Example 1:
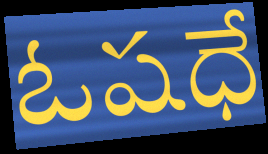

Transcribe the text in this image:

ఓషధే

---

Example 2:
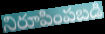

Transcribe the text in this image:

నిరూపింపబడి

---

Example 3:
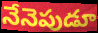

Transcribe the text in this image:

నేనెపుడూ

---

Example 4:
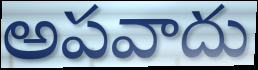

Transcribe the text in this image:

అపవాదు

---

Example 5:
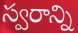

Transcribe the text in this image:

స్వరాన్ని